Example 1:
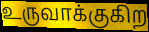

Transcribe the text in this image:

உருவாக்குகிற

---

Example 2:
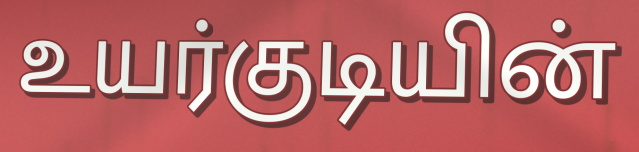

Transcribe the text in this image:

உயர்குடியின்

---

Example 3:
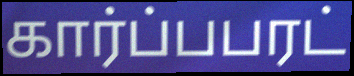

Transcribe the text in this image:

கார்ப்பபரட்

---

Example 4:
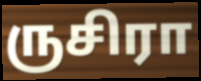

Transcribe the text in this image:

ருசிரா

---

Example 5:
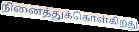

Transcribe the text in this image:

நினைத்துக்கொள்கிறது